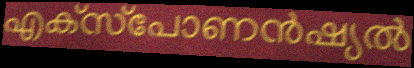
എക്‌സ്‌പോണൻഷ്യൽ